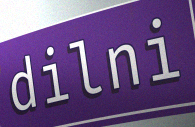
dilni